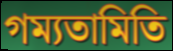
গম্যতামিতি